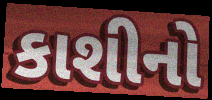
કાશીનો